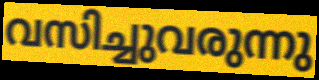
വസിച്ചുവരുന്നു